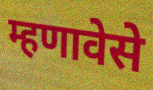
म्हणावेसे